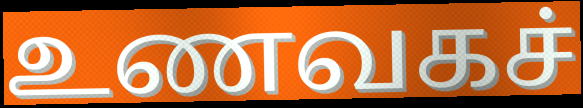
உணவகச்